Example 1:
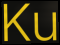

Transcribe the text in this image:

Ku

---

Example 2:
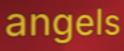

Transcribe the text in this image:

angels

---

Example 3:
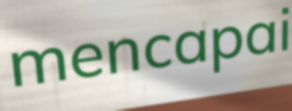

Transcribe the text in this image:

mencapai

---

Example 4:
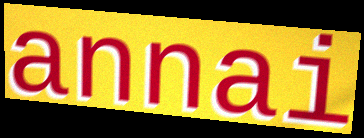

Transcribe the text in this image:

annai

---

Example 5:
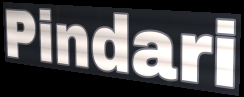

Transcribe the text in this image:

Pindari